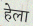
हेला